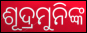
ଶୂଦ୍ରମୁନିଙ୍କ